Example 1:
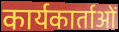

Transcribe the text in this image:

कार्यकार्ताओं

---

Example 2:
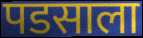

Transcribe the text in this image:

पडसाला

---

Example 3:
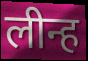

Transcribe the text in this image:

लीन्ह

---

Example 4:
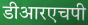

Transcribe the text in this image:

डीआरएचपी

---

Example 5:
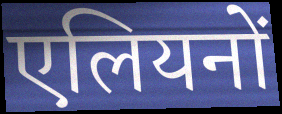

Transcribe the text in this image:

एलियनों